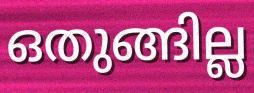
ഒതുങ്ങില്ല